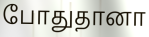
போதுதானா